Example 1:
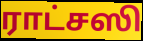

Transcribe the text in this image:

ராட்சஸி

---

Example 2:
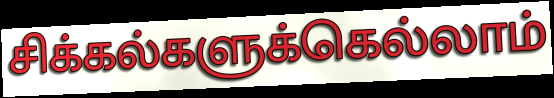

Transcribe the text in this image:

சிக்கல்களுக்கெல்லாம்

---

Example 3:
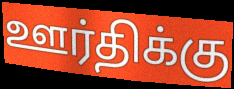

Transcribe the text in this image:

ஊர்திக்கு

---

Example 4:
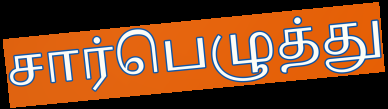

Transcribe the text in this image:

சார்பெழுத்து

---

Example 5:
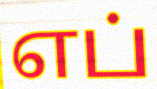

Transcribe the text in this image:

எப்